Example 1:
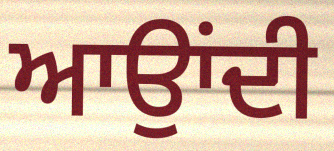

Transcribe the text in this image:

ਆਉਾਂਦੀ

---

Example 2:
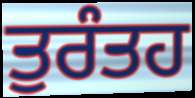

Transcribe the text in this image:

ਤੁਰੰਤਹ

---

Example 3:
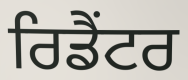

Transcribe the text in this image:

ਰਿਡੈਂਟਰ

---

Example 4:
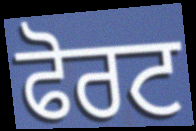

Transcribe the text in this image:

ਫੋਰਟ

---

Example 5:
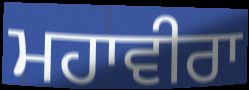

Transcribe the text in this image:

ਮਹਾਵੀਰਾ